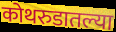
कोथरुडातल्या